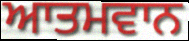
ਆਤਮਵਾਨ